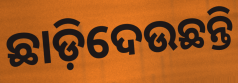
ଛାଡ଼ିଦେଉଛନ୍ତି